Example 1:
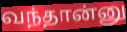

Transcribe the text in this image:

வந்தான்னு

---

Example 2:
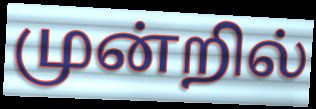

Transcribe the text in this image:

முன்றில்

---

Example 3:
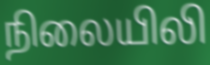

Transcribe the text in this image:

நிலையிலி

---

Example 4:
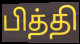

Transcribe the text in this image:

பித்தி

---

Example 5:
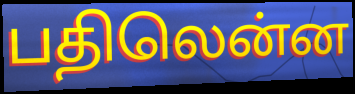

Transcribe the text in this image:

பதிலென்ன